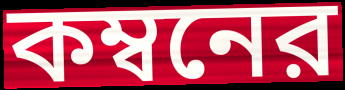
কম্বনের